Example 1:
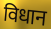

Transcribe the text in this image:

विधान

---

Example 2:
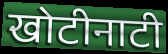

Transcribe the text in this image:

खोटीनाटी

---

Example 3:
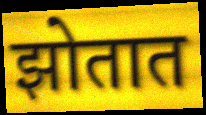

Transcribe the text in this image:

झोतात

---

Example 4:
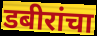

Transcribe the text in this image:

डबीरांचा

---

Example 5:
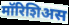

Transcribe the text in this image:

मॉरिशिअस